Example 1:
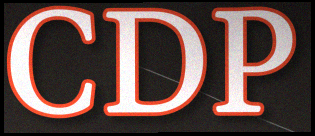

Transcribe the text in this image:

CDP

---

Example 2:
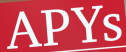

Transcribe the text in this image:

APYs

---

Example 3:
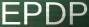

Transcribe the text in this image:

EPDP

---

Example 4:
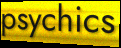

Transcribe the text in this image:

psychics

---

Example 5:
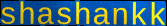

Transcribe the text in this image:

shashankk